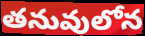
తనువులోన